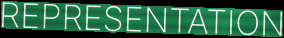
REPRESENTATION